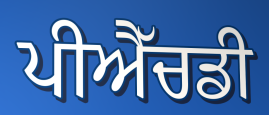
ਪੀਐੱਚਡੀ